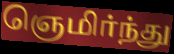
ஞெமிர்ந்து